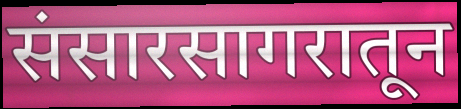
संसारसागरातून